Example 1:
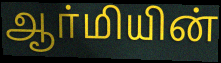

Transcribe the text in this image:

ஆர்மியின்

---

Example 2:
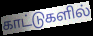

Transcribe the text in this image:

காட்டுகளில்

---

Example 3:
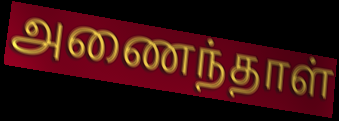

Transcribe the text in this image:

அணைந்தாள்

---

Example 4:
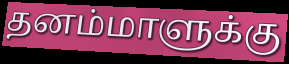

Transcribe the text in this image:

தனம்மாளுக்கு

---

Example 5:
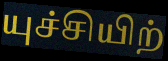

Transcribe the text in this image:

யுச்சியிற்